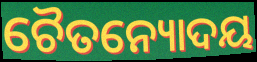
ଚୈତନ୍ୟୋଦୟ